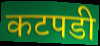
कटपडी